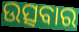
ଉତ୍ସବାର